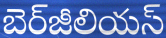
బెర్‌జీలియస్